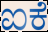
ಐಕೆ